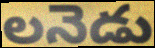
లనెడు